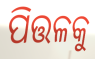
ପିତ୍ତଳକୁ